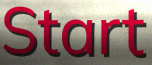
Start